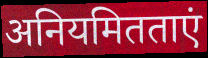
अनियमितताएं